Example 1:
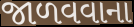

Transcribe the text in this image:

જાળવવાના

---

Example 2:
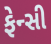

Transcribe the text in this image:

ફેન્સી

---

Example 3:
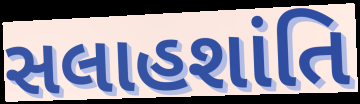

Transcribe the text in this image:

સલાહશાંતિ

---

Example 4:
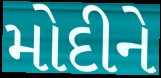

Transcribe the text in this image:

મોદીને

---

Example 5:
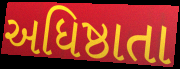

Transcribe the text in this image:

અધિષ્ઠાતા